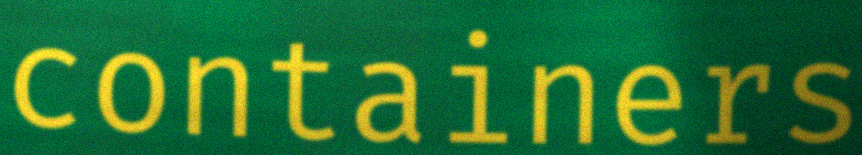
containers